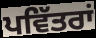
ਪਵਿੱਤਰਾਂ